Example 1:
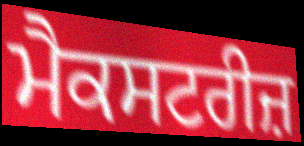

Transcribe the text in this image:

ਮੈਕਸਟਰੀਜ਼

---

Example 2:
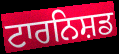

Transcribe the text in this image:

ਟਾਰਨਿਸ਼ਡ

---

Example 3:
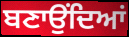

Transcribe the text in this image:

ਬਣਾਉਂਦਿਆਂ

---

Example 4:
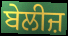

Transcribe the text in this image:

ਬੇਲੀਜ਼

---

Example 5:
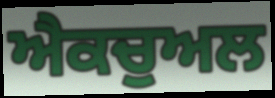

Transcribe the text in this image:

ਐਕਚੁਅਲ